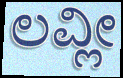
ಲವ್ಲೀ